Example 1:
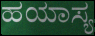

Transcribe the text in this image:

ಹಯಾಸ್ಯ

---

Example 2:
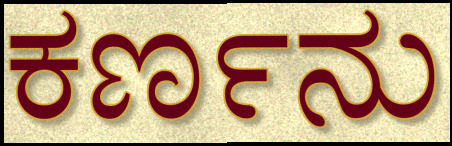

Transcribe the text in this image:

ಕರ್ಣನು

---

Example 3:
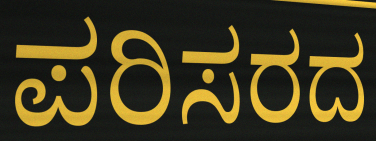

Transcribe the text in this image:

ಪರಿಸರದ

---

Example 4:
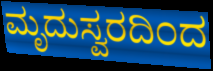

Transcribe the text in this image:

ಮೃದುಸ್ವರದಿಂದ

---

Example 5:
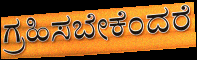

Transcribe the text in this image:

ಗ್ರಹಿಸಬೇಕೆಂದರೆ